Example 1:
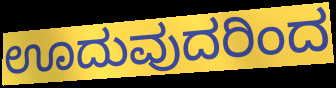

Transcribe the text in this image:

ಊದುವುದರಿಂದ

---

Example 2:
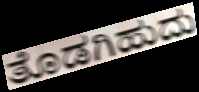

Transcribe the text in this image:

ತೊಡಗಿಹುದು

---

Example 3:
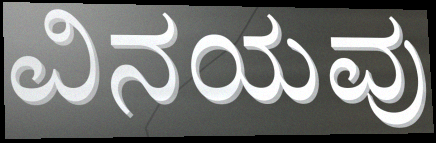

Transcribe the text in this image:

ವಿನಯವು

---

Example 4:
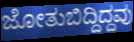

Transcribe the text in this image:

ಜೋತುಬಿದ್ದಿದ್ದವು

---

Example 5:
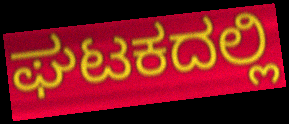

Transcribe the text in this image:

ಘಟಕದಲ್ಲಿ